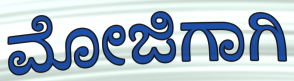
ಮೋಜಿಗಾಗಿ